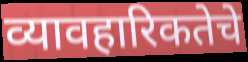
व्यावहारिकतेचे